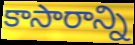
కాసారాన్ని